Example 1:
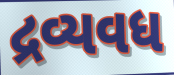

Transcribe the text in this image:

દ્રવ્યવધ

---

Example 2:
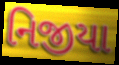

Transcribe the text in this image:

નિજીયા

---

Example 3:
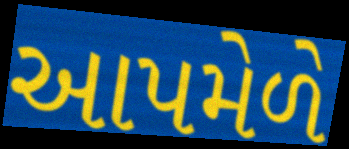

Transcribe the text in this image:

આપમેળે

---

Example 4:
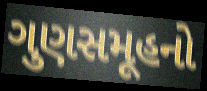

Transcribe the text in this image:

ગુણસમૂહનો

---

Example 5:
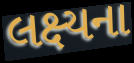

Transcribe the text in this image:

લક્ષ્યના